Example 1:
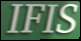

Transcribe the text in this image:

IFIS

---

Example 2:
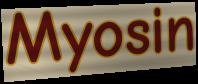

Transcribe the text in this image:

Myosin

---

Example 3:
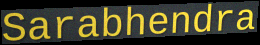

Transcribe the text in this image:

Sarabhendra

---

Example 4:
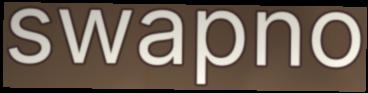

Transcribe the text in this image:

swapno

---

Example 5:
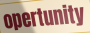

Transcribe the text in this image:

opertunity